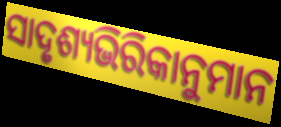
ସାଦୃଶ୍ଯଭିରିକାନୁମାନ